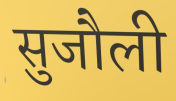
सुजौली